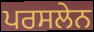
ਪਰਸਲੇਨ